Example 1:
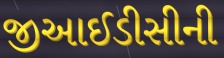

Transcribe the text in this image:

જીઆઈડીસીની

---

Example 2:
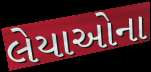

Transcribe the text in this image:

લેયાઓના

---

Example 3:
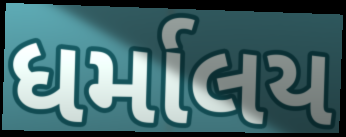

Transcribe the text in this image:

ધર્માલય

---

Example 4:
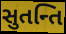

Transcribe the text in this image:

સુતન્તિ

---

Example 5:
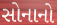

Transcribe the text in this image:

સોનાનો